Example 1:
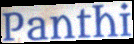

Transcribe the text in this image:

Panthi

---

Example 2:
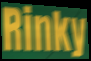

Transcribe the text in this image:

Rinky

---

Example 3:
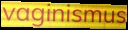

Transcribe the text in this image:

vaginismus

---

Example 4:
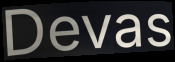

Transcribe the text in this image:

Devas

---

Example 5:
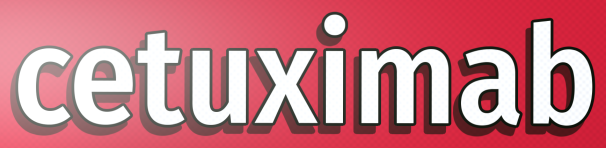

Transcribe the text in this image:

cetuximab